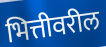
भित्तीवरील